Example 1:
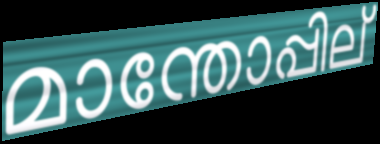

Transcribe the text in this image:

മാന്തോപ്പില്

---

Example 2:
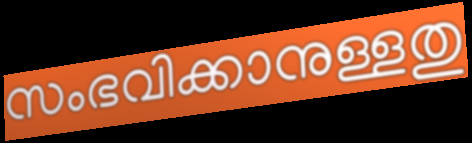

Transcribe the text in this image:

സംഭവിക്കാനുള്ളതു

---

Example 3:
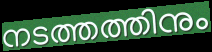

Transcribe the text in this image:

നടത്തത്തിനും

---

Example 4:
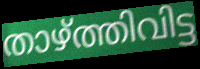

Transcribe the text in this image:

താഴ്ത്തിവിട്ട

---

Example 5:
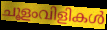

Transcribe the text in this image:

ചൂളംവിളികൾ